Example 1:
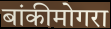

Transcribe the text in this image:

बांकीमोगरा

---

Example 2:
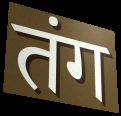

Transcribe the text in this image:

तंग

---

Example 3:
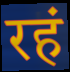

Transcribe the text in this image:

रहं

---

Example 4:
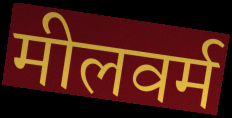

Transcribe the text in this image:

मीलवर्म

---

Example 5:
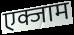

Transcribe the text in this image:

एक्जाम